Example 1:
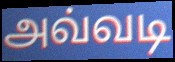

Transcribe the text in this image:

அவ்வடி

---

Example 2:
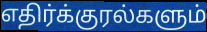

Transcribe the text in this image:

எதிர்க்குரல்களும்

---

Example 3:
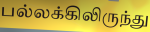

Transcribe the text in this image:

பல்லக்கிலிருந்து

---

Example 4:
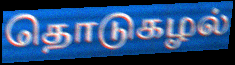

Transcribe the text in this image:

தொடுகழல்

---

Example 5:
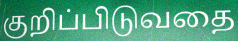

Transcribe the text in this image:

குறிப்பிடுவதை